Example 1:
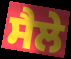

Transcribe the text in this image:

ਸੈਲੇ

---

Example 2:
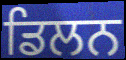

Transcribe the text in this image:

ਡਿਲਨ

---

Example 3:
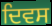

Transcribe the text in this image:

ਦਿਵਸ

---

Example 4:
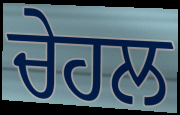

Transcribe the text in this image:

ਚੇਹਲ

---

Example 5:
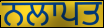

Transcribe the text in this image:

ਨਲਾਪਤ